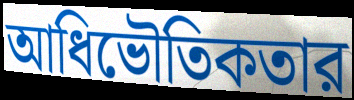
আধিভৌতিকতার